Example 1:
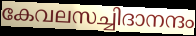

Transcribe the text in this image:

കേവലസച്ചിദാനന്ദം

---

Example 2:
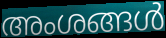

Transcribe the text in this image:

അംശങ്ങൾ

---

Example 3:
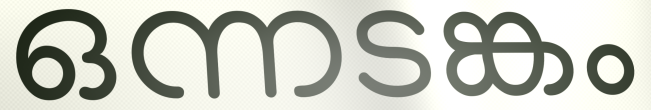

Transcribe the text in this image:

ഒന്നടങ്കം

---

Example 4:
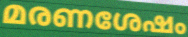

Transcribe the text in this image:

മരണശേഷം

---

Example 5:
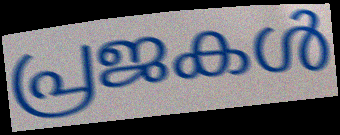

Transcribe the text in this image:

പ്രജകൾ